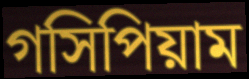
গসিপিয়াম